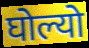
घोल्यो